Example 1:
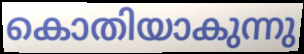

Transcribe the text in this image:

കൊതിയാകുന്നു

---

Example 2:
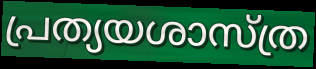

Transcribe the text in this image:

പ്രത്യയശാസ്ത്ര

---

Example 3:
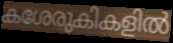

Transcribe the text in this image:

കശേരുകികളിൽ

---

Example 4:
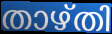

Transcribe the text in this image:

താഴ്തി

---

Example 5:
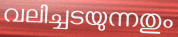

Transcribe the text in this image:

വലിച്ചടയുന്നതും